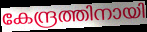
കേന്ദ്രത്തിനായി